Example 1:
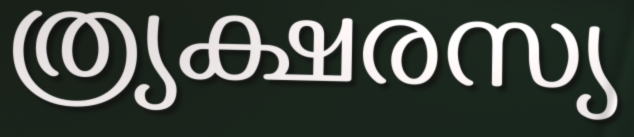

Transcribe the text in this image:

ത്ര്യക്ഷരസ്യ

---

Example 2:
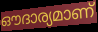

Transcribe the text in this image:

ഔദാര്യമാണ്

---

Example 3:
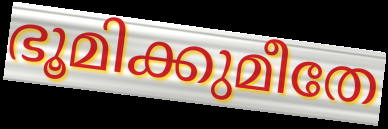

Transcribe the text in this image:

ഭൂമിക്കുമീതേ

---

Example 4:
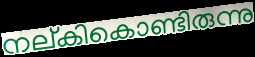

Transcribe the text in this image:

നല്കികൊണ്ടിരുന്നു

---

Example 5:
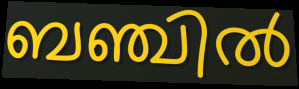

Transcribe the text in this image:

ബഞ്ചിൽ